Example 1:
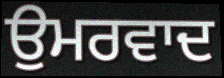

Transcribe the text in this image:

ਉਮਰਵਾਦ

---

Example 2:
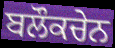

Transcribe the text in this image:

ਬਲੌਕਚੇਨ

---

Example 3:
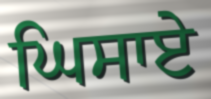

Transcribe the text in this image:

ਘਿਸਾਏ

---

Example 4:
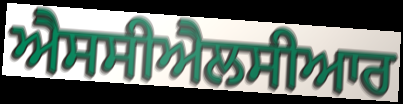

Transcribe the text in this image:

ਐਸਸੀਐਲਸੀਆਰ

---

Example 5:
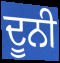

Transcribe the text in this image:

ਦੂਨੀ